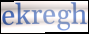
ekregh